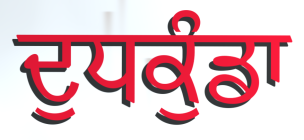
ਦੁਧਕੁੰਡਾ